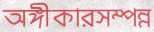
অঙ্গীকারসম্পন্ন